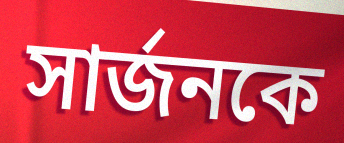
সার্জনকে